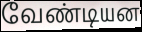
வேண்டியன